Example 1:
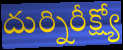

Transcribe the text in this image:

దుర్నిరీక్ష్యో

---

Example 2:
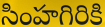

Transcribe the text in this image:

సింహగిరికి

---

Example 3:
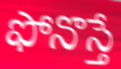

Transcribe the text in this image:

ఫోనొస్తే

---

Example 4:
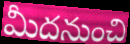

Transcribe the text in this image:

మీదనుంచి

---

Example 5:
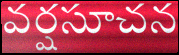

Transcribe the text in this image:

వర్షసూచన